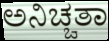
ಅನಿಚ್ಚತಾ